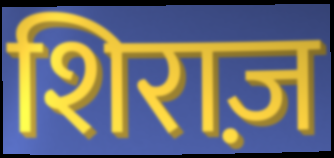
शिराज़